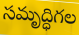
సమృద్ధిగల